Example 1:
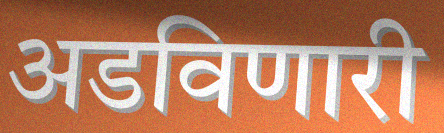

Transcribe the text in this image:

अडविणारी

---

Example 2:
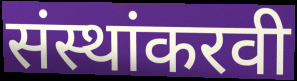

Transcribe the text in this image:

संस्थांकरवी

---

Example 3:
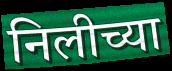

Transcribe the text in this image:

निलीच्या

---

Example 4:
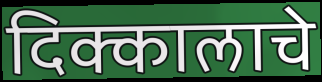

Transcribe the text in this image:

दिक्कालाचे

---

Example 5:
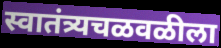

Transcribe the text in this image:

स्वातंत्र्यचळवळीला